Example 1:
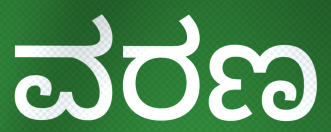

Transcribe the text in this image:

ವರಣ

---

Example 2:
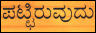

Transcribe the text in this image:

ಪಟ್ಟಿರುವುದು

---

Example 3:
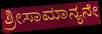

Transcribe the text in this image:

ಶ್ರೀಸಾಮಾನ್ಯನೇ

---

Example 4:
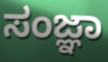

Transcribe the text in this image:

ಸಂಜ್ಞಾ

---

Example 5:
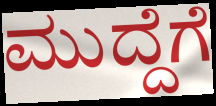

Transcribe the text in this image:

ಮುದ್ದೆಗೆ